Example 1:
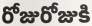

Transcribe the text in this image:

రోజురోజుకి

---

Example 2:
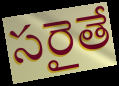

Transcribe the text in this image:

సరైతే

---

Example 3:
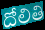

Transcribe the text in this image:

దోలితి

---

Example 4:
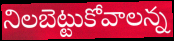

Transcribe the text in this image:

నిలబెట్టుకోవాలన్న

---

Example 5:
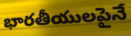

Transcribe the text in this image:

భారతీయులపైనే